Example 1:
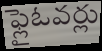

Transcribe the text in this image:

ఫ్లైఓవర్లు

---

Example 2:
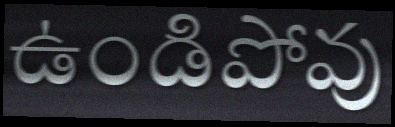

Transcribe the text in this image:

ఉండిపోవు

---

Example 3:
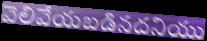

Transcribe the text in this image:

వెలివేయబడినదనియు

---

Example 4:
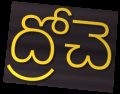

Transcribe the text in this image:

ద్రోచె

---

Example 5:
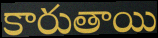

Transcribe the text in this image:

కారుతాయి